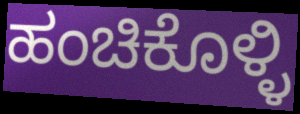
ಹಂಚಿಕೊಳ್ಳಿ